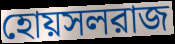
হোয়সলরাজ